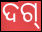
ଦଗ୍